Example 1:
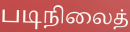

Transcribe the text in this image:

படிநிலைத்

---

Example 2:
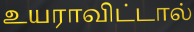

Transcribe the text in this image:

உயராவிட்டால்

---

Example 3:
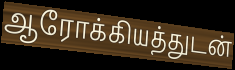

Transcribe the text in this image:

ஆரோக்கியத்துடன்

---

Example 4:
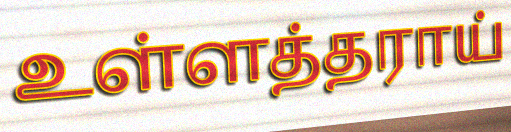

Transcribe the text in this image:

உள்ளத்தராய்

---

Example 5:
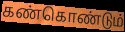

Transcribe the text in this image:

கண்கொண்டும்